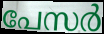
പേസർ